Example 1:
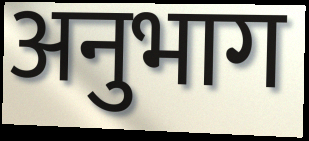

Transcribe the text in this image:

अनुभाग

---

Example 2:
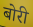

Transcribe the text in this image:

बोरी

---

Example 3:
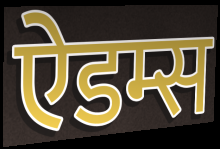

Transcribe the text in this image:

ऐडम्स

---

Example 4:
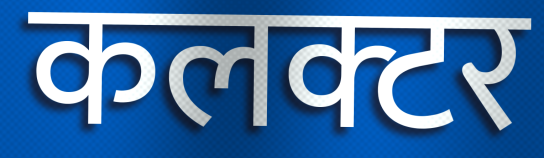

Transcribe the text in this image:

कलक्‍टर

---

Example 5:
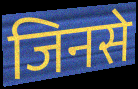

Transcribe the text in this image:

जिनसे